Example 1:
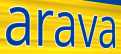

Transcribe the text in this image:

arava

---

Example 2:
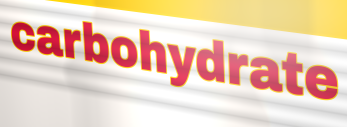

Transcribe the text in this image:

carbohydrate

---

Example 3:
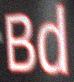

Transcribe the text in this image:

Bd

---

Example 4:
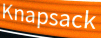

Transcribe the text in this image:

Knapsack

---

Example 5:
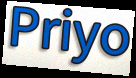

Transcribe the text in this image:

Priyo